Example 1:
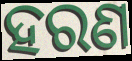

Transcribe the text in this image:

ହରଣ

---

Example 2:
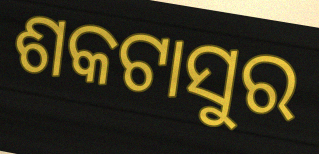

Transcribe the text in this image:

ଶକଟାସୁର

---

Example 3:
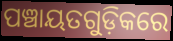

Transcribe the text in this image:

ପଞ୍ଚାୟତଗୁଡ଼ିକରେ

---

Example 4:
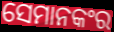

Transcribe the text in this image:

ସେମାନକଂର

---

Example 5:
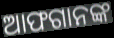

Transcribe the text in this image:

ଆଫଗାନଙ୍କ